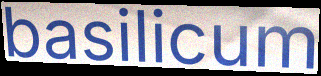
basilicum